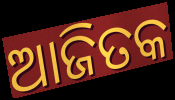
ଆଜିତକ